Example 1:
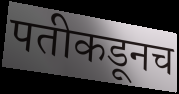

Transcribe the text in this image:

पतीकडूनच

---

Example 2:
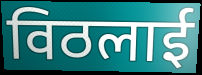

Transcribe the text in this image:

विठलाई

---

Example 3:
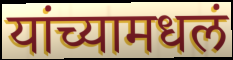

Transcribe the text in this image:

यांच्यामधलं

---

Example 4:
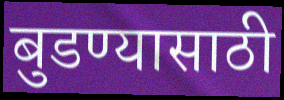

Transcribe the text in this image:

बुडण्यासाठी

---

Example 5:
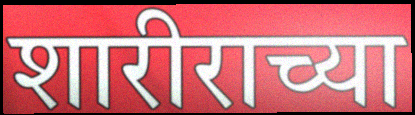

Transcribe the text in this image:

शारीराच्या